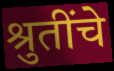
श्रुतींचे